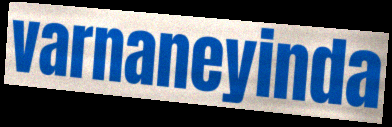
varnaneyinda